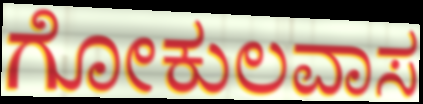
ಗೋಕುಲವಾಸ